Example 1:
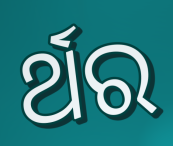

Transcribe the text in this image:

ର୍ଥର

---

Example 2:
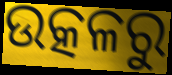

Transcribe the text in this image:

ଉତ୍କଳରୁ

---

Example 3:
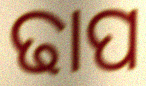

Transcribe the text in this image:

ଢାପ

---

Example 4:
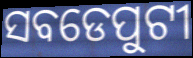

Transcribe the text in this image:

ସବଡେପୁଟୀ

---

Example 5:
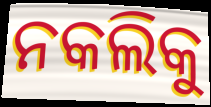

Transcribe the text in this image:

ନକଲିକୁ